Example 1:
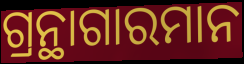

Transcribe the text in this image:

ଗ୍ରନ୍ଥାଗାରମାନ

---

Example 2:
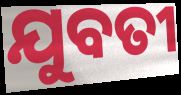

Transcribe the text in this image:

ଯୁବତୀ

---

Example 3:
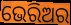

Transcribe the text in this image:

ଭେରିଅର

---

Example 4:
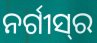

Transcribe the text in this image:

ନର୍ଗୀସ୍‍ର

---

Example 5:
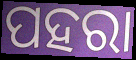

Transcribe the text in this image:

ପହରା